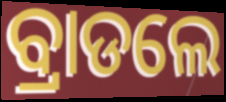
ବ୍ରାଡଲେ